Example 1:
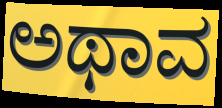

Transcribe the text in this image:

ಅಥಾವ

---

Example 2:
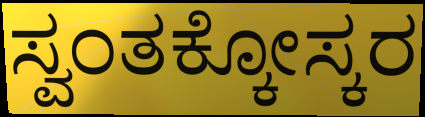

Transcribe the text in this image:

ಸ್ವಂತಕ್ಕೋಸ್ಕರ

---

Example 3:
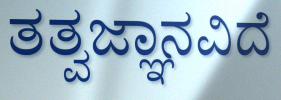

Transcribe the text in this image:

ತತ್ವಜ್ಞಾನವಿದೆ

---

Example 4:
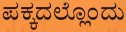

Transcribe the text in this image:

ಪಕ್ಕದಲ್ಲೊಂದು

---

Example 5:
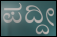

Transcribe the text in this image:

ಪದ್ದೀ